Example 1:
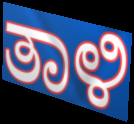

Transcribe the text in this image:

ತಾಳಿ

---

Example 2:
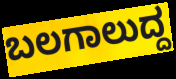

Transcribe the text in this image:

ಬಲಗಾಲುದ್ದ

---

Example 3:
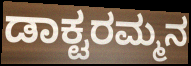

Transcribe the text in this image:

ಡಾಕ್ಟರಮ್ಮನ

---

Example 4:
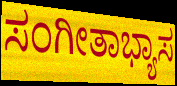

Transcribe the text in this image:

ಸಂಗೀತಾಭ್ಯಾಸ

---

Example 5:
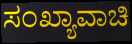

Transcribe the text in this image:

ಸಂಖ್ಯಾವಾಚಿ